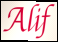
Alif